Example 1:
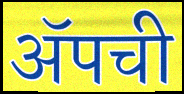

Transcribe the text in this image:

ॲपची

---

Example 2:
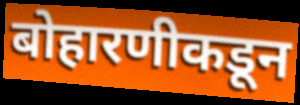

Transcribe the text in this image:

बोहारणीकडून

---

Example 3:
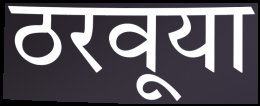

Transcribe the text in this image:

ठरवूया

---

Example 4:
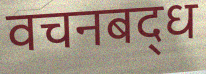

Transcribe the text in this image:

वचनबद्ध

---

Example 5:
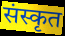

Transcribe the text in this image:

संस्कृत